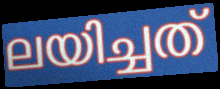
ലയിച്ചത്